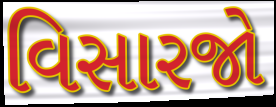
વિસારજો